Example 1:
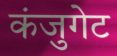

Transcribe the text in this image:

कंजुगेट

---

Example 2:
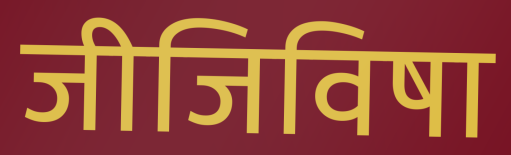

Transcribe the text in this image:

जीजिविषा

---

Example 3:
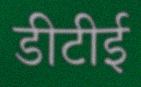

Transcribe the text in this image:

डीटीई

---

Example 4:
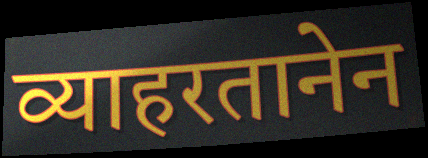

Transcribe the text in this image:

व्याहरतानेन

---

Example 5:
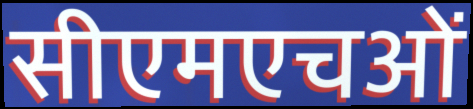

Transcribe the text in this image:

सीएमएचओं